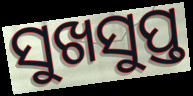
ସୁଖସୁପ୍ତ